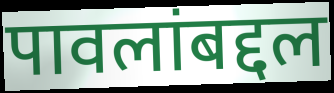
पावलांबद्दल